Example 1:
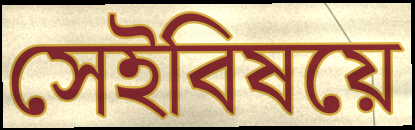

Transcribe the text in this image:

সেইবিষয়ে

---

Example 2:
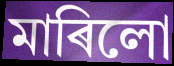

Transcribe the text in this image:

মাৰিলো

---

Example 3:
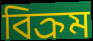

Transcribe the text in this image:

বিক্ৰম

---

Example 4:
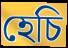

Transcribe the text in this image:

হেচি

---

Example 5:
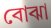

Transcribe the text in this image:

বোঝা